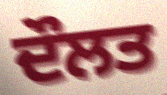
ਦੌਲਤ